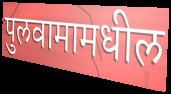
पुलवामामधील